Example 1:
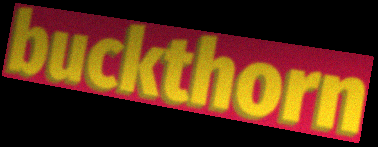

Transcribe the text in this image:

buckthorn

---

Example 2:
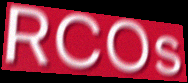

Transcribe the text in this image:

RCOs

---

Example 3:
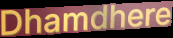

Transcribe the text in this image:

Dhamdhere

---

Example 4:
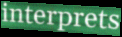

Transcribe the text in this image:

interprets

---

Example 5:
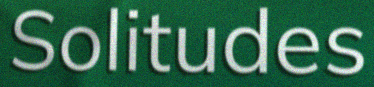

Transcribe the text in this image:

Solitudes